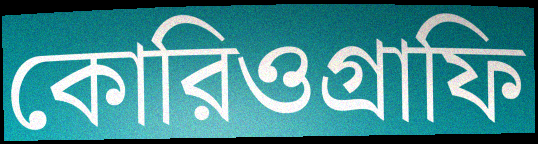
কোরিওগ্রাফি